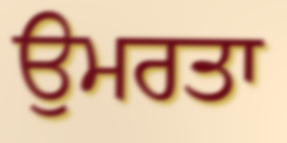
ਉਮਰਤਾ